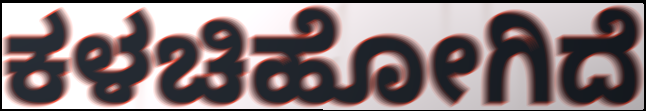
ಕಳಚಿಹೋಗಿದೆ